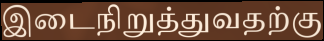
இடைநிறுத்துவதற்கு